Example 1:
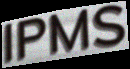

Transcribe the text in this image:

IPMS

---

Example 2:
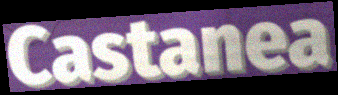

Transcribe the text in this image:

Castanea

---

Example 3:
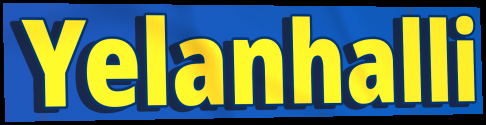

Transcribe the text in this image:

Yelanhalli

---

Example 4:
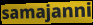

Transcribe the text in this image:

samajanni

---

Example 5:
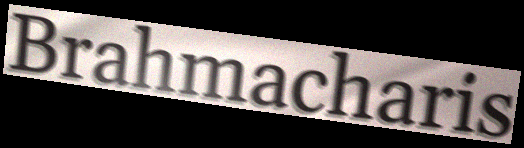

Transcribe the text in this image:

Brahmacharis